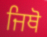
ਜਿਥੋ